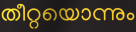
തീറ്റയൊന്നും